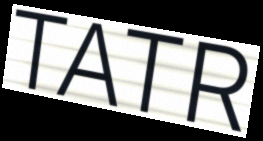
TATR